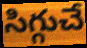
సిగ్గుచే